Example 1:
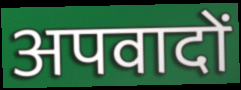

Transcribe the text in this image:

अपवादों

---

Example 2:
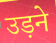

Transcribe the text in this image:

उड़ने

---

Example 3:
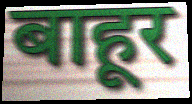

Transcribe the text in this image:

बाहूर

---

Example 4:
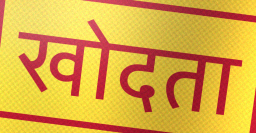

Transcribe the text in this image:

खोदता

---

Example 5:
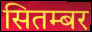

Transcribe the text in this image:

सितम्‍बर